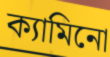
ক্যামিনো